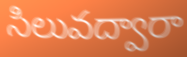
సిలువద్వారా